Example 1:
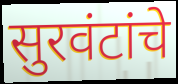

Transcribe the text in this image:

सुरवंटांचे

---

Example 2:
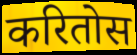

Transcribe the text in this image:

करितोस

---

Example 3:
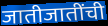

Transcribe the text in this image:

जातीजातींची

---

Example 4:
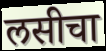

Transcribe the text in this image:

लसीचा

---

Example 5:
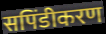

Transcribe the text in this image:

सपिंडीकरण